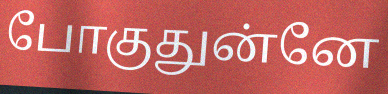
போகுதுன்னே